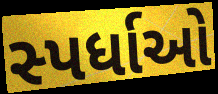
સ્પર્ધાઓ